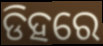
ଡିହରେ